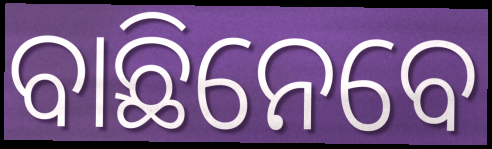
ବାଛିନେବେ